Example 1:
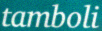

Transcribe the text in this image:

tamboli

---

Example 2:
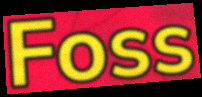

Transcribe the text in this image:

Foss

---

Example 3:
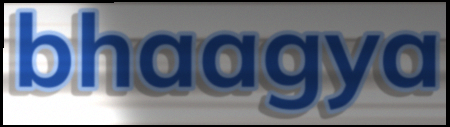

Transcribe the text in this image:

bhaagya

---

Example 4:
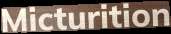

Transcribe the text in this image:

Micturition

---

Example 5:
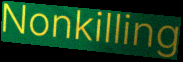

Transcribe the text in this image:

Nonkilling